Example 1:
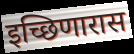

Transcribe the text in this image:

इच्छिणारास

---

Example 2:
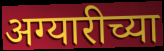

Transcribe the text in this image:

अग्यारीच्या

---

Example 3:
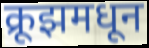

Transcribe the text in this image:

क्रूझमधून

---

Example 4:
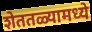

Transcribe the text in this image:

शेततळ्यामध्ये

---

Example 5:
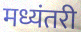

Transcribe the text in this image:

मध्यंतरी